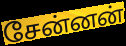
சேன்னன்